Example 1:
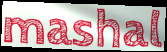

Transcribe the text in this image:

mashal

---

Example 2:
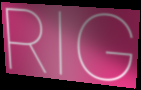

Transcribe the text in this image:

RIG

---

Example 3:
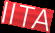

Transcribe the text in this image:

IITA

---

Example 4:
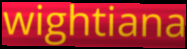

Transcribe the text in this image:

wightiana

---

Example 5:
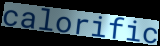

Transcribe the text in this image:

calorific